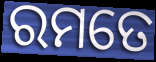
ରମତେ